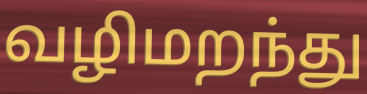
வழிமறந்து